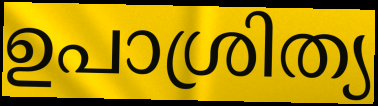
ഉപാശ്രിത്യ